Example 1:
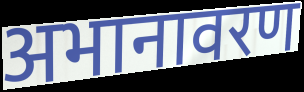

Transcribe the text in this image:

अभानावरण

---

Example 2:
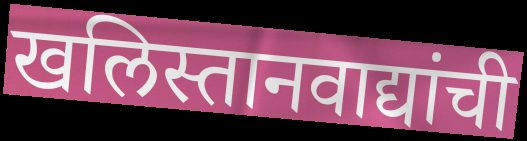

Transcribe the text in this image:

खलिस्तानवाद्यांची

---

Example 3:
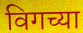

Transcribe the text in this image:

विगच्या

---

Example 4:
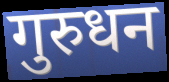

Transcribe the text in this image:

गुरुधन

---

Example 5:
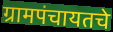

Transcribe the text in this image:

ग्रामपंचायतचे